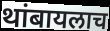
थांबायलाच